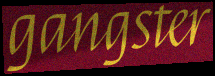
gangster